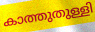
കാത്തുതുള്ളി